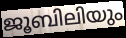
ജൂബിലിയും